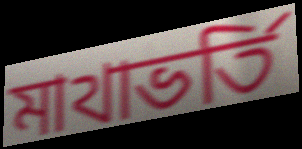
মাথাভর্তি